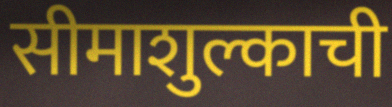
सीमाशुल्काची